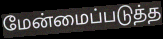
மேன்மைப்படுத்த